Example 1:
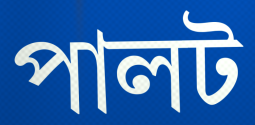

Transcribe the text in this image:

পালট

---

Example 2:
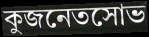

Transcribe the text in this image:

কুজনেতসোভ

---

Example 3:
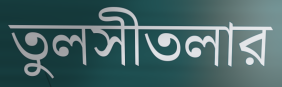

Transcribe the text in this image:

তুলসীতলার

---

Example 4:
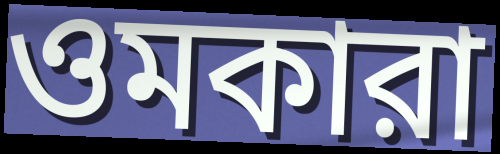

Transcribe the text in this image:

ওমকারা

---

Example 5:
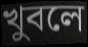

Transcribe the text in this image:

খুবলে